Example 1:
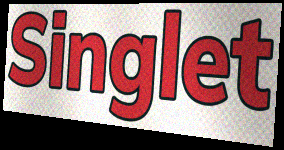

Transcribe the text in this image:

Singlet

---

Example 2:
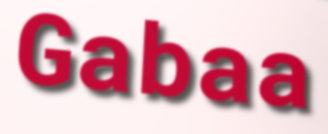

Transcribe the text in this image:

Gabaa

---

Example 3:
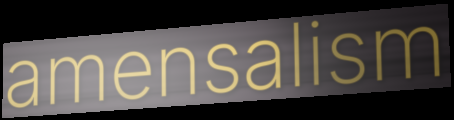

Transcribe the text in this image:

amensalism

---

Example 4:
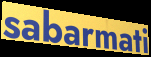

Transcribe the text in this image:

sabarmati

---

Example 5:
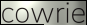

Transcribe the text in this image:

cowrie